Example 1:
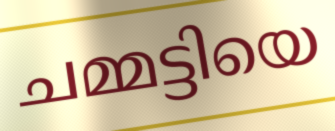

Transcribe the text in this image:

ചമ്മട്ടിയെ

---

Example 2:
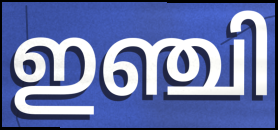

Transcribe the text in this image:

ഇഞ്ചി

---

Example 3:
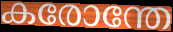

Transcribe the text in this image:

കരോന്തേ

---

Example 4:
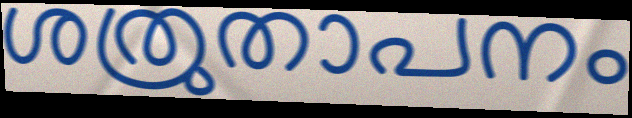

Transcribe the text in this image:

ശത്രുതാപനം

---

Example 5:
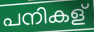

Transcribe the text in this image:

പനികള്